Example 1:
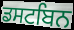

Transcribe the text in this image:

ਡਸਟਬਿਨ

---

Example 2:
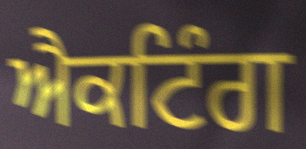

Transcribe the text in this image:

ਐਕਟਿੰਗ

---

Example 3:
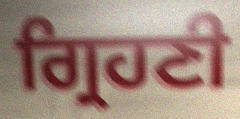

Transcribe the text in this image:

ਗ੍ਰਿਹਣੀ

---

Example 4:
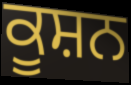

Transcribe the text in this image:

ਕੂਸ਼ਨ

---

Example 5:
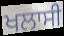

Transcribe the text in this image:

ਖਲਾਸੀ